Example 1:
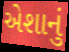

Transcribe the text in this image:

એશાનું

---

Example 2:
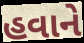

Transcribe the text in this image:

હવાને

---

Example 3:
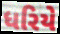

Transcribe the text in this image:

ધરિયે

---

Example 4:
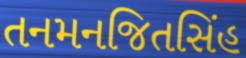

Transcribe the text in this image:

તનમનજિતસિંહ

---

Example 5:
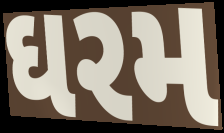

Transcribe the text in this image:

ઘરમ